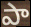
పా